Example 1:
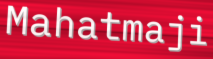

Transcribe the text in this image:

Mahatmaji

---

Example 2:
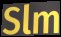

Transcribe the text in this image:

Slm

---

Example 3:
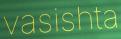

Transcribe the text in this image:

vasishta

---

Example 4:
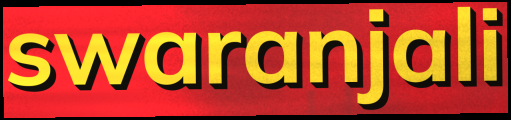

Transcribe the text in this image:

swaranjali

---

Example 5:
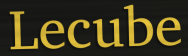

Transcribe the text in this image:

Lecube